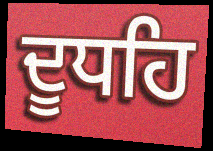
ਦੂਧਹਿ